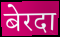
बेरदा